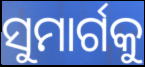
ସୁମାର୍ଗକୁ